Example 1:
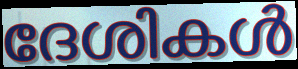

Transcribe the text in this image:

ദേശികൾ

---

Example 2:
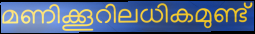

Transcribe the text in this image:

മണിക്കൂറിലധികമുണ്ട്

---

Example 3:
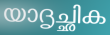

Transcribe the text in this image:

യാദൃച്ഛിക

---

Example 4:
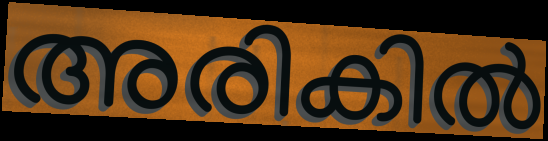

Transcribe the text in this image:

അരികിൽ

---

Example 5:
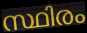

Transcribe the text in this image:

സ്ഥിരം